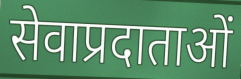
सेवाप्रदाताओं